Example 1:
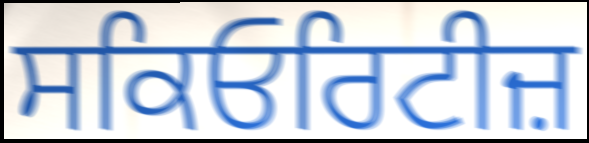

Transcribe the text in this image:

ਸਕਿਓਰਿਟੀਜ਼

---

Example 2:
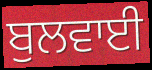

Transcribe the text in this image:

ਬੁਲਵਾਈ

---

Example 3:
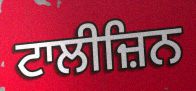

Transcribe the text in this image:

ਟਾਲੀਜ਼ਿਨ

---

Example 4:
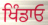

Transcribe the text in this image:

ਖਿੰਡਾਓ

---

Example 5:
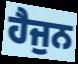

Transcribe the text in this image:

ਹੈਜੁਨ